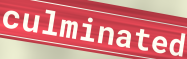
culminated